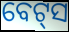
ବେଟ୍‌ସ